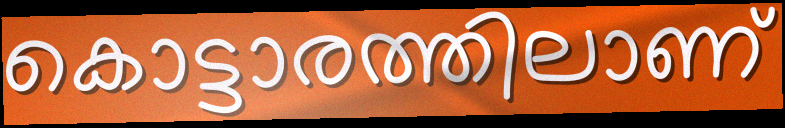
കൊട്ടാരത്തിലാണ്